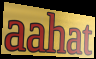
aahat